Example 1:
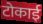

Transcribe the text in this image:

टोकाई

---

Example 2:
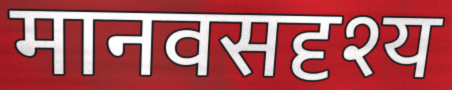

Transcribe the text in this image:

मानवसदृश्य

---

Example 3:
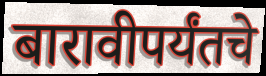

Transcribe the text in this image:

बारावीपर्यंतचे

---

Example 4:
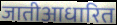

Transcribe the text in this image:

जातीआधारित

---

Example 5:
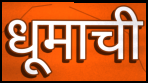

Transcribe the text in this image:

धूमाची